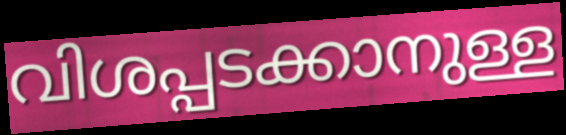
വിശപ്പടക്കാനുള്ള